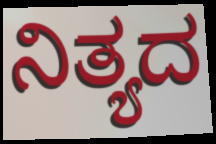
ನಿತ್ಯದ